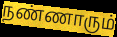
நண்ணாரும்